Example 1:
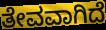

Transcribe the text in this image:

ತೇವವಾಗಿದೆ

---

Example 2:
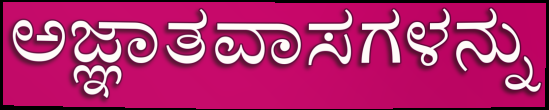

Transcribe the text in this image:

ಅಜ್ಞಾತವಾಸಗಳನ್ನು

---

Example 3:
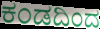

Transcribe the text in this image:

ಕಂಡದಿಂದ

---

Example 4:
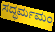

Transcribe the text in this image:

ಸದ್ಧರ್ಮಮಂ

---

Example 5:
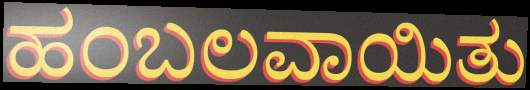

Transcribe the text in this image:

ಹಂಬಲವಾಯಿತು